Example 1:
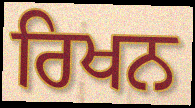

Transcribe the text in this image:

ਰਿਖਨ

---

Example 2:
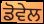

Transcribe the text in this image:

ਡੋਵੇਲ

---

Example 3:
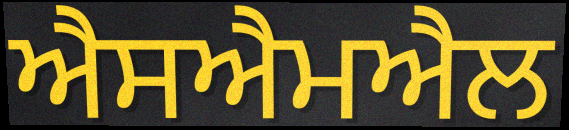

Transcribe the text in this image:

ਐਸਐਮਐਲ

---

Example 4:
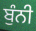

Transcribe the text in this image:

ਬੁੰਨੀ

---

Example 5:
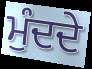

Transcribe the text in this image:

ਮੁੰਦਦੇ